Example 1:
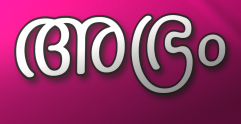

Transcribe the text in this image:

അഭ്രം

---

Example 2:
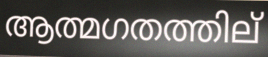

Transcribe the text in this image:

ആത്മഗതത്തില്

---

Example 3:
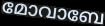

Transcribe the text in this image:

മോവാബേ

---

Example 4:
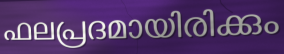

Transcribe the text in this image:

ഫലപ്രദമായിരിക്കും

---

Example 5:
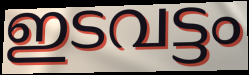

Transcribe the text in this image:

ഇടവട്ടം